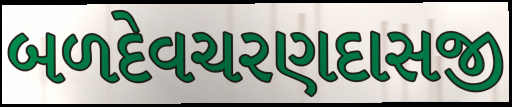
બળદેવચરણદાસજી